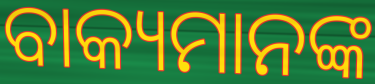
ବାକ୍ୟମାନଙ୍କ